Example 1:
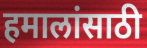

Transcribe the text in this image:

हमालांसाठी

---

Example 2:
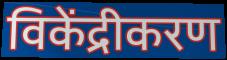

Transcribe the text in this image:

विकेंद्रीकरण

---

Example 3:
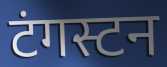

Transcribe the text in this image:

टंगस्टन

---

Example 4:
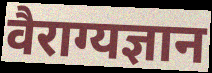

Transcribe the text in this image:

वैराग्यज्ञान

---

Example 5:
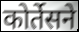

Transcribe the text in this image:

कोर्तेसने